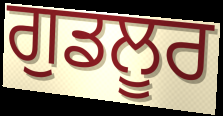
ਗੁਡਲੂਰ